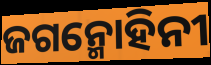
ଜଗନ୍ମୋହିନୀ